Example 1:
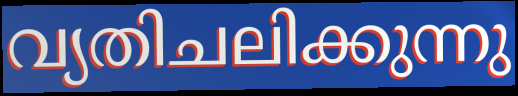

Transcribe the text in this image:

വ്യതിചലിക്കുന്നു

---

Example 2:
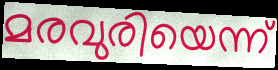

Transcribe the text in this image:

മരവുരിയെന്ന്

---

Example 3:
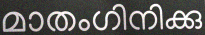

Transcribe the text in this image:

മാതംഗിനിക്കു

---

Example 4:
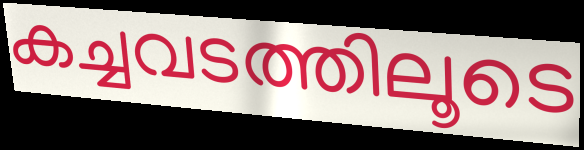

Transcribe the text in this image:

കച്ചവടത്തിലൂടെ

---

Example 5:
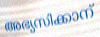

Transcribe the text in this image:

അഭ്യസിക്കാന്